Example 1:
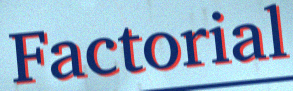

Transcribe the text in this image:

Factorial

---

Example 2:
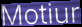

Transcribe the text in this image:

Motiur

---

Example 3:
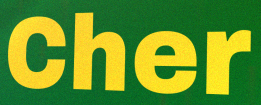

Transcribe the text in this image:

Cher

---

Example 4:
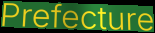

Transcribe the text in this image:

Prefecture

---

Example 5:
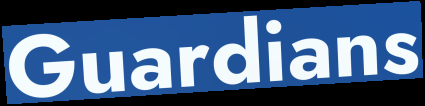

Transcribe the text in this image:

Guardians